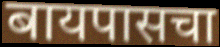
बायपासचा